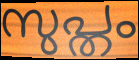
സുപ്തം